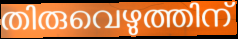
തിരുവെഴുത്തിന്